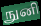
நுனி